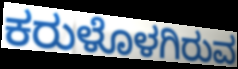
ಕರುಳೊಳಗಿರುವ